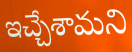
ఇచ్చేశామని